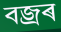
বজ্ৰৰ